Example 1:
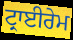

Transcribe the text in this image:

ਟ੍ਰਾਈਰੇਮ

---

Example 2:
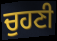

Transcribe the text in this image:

ਚੁਹਣੀ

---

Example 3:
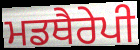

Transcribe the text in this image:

ਮਡਥੈਰੇਪੀ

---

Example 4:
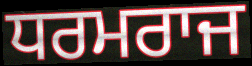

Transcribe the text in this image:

ਧਰਮਰਾਜ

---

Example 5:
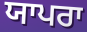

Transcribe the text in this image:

ਯਾਪਰਾ